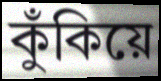
কুঁকিয়ে